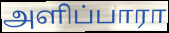
அளிப்பாரா